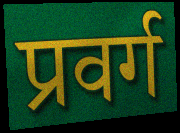
प्रवर्ग